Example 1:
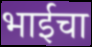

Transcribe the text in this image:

भाईचा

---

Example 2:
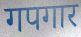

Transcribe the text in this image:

गपगार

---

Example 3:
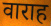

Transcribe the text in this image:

वाराह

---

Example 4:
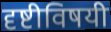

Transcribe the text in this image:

दृष्टीविषयी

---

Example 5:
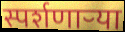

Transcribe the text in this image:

स्पर्शणाऱ्या